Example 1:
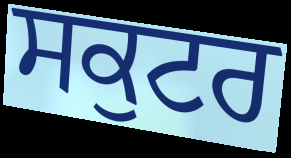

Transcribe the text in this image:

ਸਕੁਟਰ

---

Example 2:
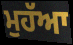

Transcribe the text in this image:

ਮੁਹੱਆ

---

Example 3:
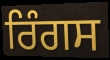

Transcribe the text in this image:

ਰਿੰਗਸ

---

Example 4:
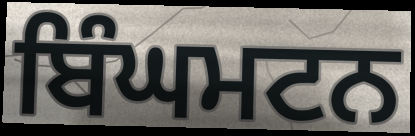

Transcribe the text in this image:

ਬਿੰਘਮਟਨ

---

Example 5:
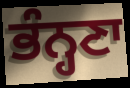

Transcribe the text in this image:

ਭੰਨ੍ਹਣਾ